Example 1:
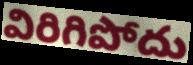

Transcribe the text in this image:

విరిగిపోదు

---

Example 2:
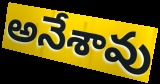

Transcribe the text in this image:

అనేశావు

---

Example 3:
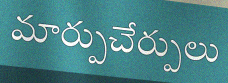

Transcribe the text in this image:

మార్పుచేర్పులు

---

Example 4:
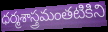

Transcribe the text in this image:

ధర్మశాస్త్రమంతటికిని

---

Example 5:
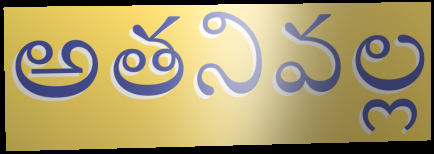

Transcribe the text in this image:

అతనివల్ల